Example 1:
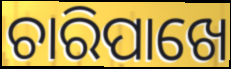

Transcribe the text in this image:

ଚାରିପାଖେ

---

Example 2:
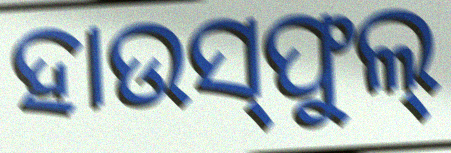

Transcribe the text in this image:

ହାଉସ୍‌ଫୁଲ୍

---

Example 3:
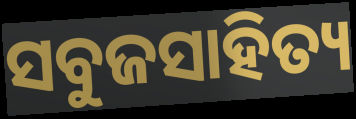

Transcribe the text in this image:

ସବୁଜସାହିତ୍ୟ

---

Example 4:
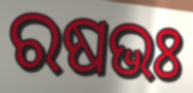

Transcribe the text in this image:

ରଷଭଃ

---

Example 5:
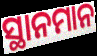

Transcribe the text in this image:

ସ୍ଥାନମାନ